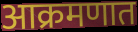
आक्रमणात